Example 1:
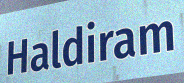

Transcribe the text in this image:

Haldiram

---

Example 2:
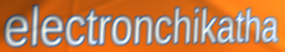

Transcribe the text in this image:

electronchikatha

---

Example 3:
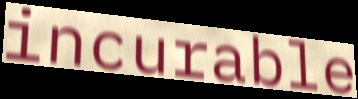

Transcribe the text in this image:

incurable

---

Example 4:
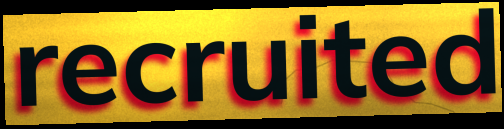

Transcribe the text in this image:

recruited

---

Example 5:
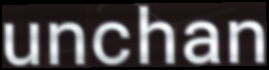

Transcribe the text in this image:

unchan